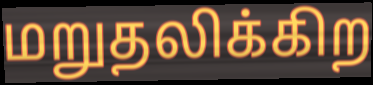
மறுதலிக்கிற